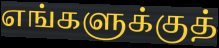
எங்களுக்குத்